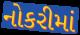
નોકરીમાં